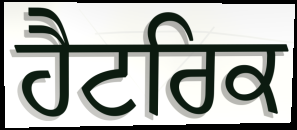
ਹੈਟਰਿਕ